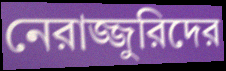
নেরাজ্জুরিদের